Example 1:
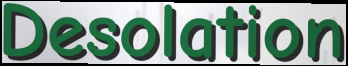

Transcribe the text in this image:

Desolation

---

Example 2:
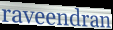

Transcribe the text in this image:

raveendran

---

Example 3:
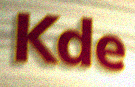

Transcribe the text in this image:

Kde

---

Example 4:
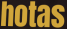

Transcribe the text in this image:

hotas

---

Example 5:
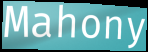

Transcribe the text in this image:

Mahony